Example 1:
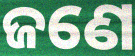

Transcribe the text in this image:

ଜଣେ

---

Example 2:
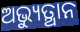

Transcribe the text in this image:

ଅଭ୍ୟୁତ୍ଥାନ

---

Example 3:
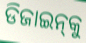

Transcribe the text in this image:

ଡିଜାଇନ୍‌କୁ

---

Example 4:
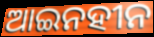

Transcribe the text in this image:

ଆଇନହୀନ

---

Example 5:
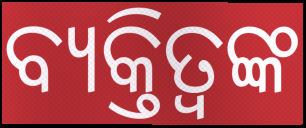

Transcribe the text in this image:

ବ୍ୟକ୍ତିତ୍ବଙ୍କ